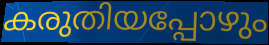
കരുതിയപ്പോഴും